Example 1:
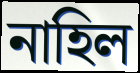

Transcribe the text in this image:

নাহিল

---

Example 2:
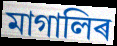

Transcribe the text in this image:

মাগালিৰ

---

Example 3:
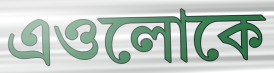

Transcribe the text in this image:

এওলোকে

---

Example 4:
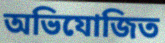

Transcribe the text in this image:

অভিযোজিত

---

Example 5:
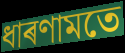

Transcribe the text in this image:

ধাৰণামতে